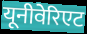
यूनीवेरिएट